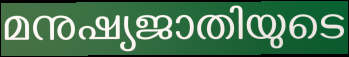
മനുഷ്യജാതിയുടെ